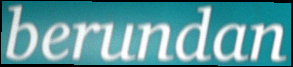
berundan